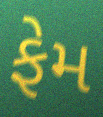
ફેમ